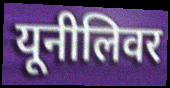
यूनीलिवर